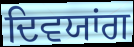
ਦਿਵਯਾਂਗ